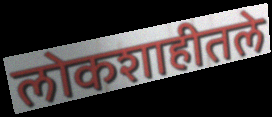
लोकशाहीतले